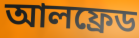
আলফ্রেড